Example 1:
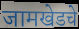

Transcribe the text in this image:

जामखेडचे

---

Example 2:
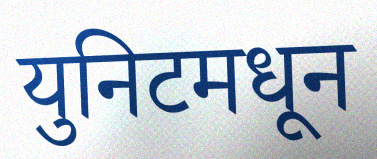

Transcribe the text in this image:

युनिटमधून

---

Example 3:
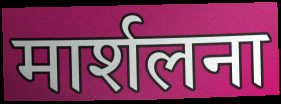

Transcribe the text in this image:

मार्शलना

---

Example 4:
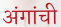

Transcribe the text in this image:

अंगांची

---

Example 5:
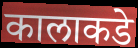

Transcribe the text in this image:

कालाकडे